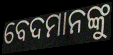
ବେଦମାନଙ୍କୁ